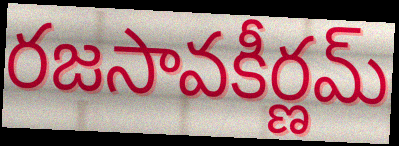
రజసావకీర్ణమ్